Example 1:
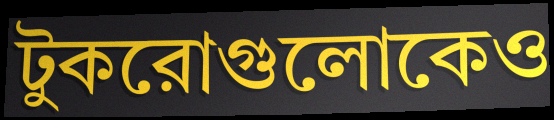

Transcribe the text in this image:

টুকরোগুলোকেও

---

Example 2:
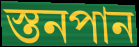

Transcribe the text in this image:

স্তনপান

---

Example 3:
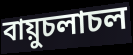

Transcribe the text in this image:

বায়ুচলাচল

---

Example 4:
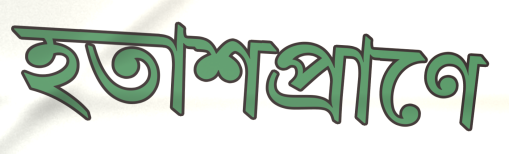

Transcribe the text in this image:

হতাশপ্রাণে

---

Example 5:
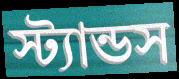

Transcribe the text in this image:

স্ট্যান্ডস